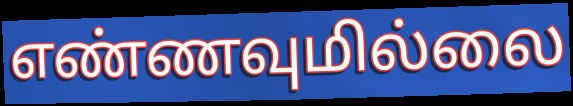
எண்ணவுமில்லை